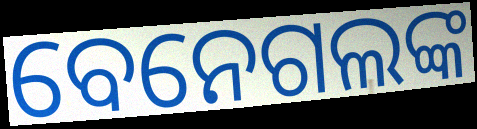
ବେନେଗଲଙ୍କ